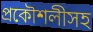
প্রকৌশলীসহ